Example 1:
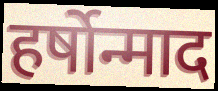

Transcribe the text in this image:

हर्षोन्माद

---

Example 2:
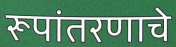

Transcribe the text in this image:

रूपांतरणाचे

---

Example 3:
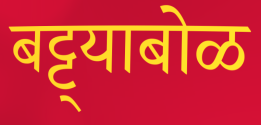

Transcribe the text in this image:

बट्ट्याबोळ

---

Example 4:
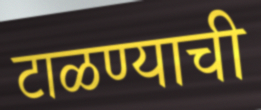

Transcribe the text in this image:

टाळण्याची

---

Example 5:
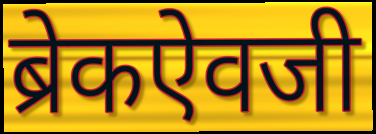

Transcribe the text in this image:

ब्रेकऐवजी